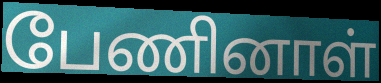
பேணினாள்